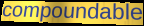
compoundable